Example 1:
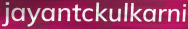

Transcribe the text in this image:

jayantckulkarni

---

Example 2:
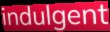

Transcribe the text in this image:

indulgent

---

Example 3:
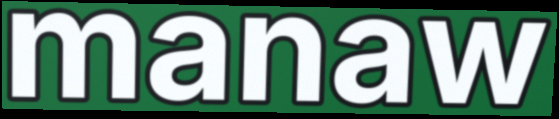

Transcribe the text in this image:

manaw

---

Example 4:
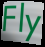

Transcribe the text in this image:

Fly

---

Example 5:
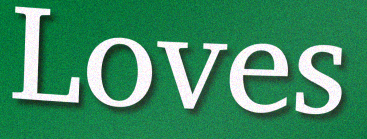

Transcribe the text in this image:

Loves